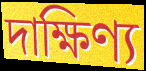
দাক্ষিণ্য